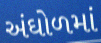
અંઘોળમાં